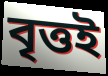
বৃত্তই